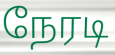
நேரடி